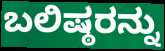
ಬಲಿಷ್ಠರನ್ನು